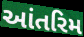
આંતરિમ